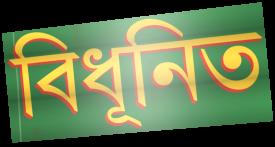
বিধূনিত